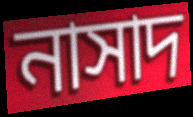
নাসাদ